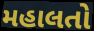
મહાલતો